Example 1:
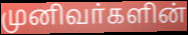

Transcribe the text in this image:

முனிவர்களின்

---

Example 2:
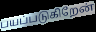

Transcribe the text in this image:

பயப்படுகிறேன்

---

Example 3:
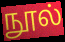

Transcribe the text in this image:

நூல்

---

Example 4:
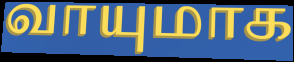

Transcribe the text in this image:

வாயுமாக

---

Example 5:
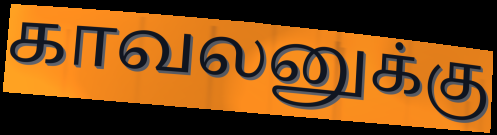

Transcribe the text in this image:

காவலனுக்கு